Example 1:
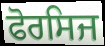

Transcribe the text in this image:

ਫੋਰਸਿਜ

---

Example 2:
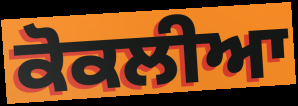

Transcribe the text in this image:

ਕੋਕਲੀਆ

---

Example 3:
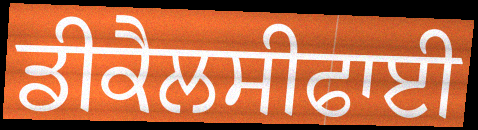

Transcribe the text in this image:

ਡੀਕੈਲਸੀਫਾਈ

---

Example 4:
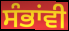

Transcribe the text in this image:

ਸੰਭਾਂਵੀ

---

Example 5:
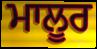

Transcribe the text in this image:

ਮਾਲੂਰ